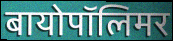
बायोपॉलिमर